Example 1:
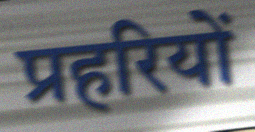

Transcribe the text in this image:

प्रहरियों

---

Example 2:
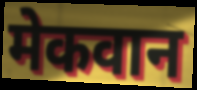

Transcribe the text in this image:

मेकवान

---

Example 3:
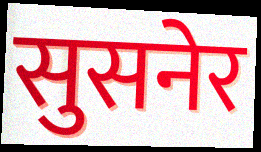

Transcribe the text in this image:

सुसनेर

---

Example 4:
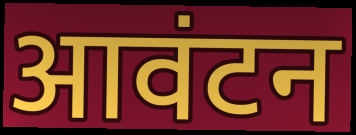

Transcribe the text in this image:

आवंटन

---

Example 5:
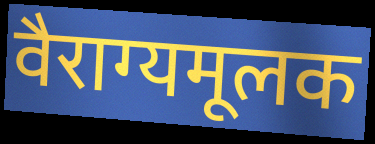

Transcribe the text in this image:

वैराग्यमूलक